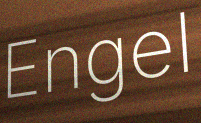
Engel